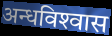
अन्‍धविश्‍वास